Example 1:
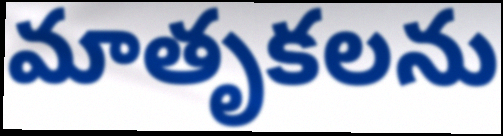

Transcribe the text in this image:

మాతృకలను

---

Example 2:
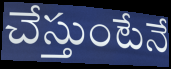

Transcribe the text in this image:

చేస్తుంటేనే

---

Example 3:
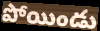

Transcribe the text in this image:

పోయిండు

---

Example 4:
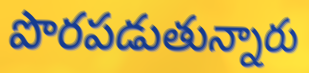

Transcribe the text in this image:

పొరపడుతున్నారు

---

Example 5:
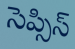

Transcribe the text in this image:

సెప్సిస్